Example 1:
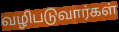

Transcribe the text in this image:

வழிபடுவார்கள்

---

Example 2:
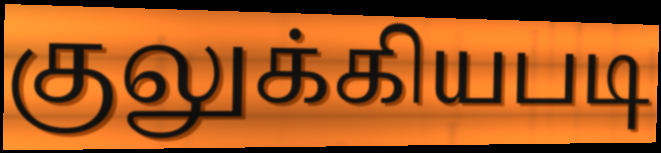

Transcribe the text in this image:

குலுக்கியபடி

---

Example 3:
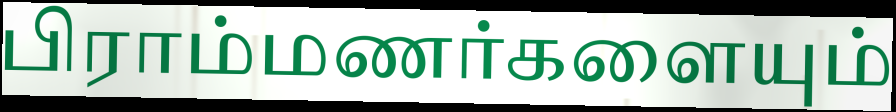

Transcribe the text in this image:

பிராம்மணர்களையும்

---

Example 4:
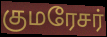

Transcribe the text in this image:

குமரேசர்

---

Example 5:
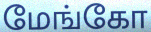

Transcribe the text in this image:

மேங்கோ